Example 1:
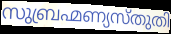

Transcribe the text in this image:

സുബ്രഹ്മണ്യസ്തുതി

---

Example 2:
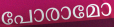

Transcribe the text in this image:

പോരാമോ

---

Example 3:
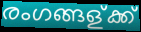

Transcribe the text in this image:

രംഗങ്ങള്ക്ക്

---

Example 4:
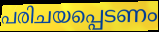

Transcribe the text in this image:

പരിചയപ്പെടണം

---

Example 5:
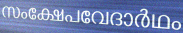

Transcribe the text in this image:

സംക്ഷേപവേദാർഥം